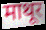
माथूर